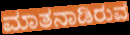
ಮಾತನಾಡಿರುವ